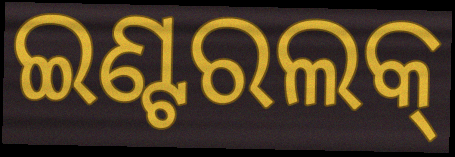
ଇଣ୍ଟରଲକ୍